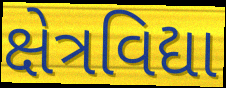
ક્ષેત્રવિદ્યા